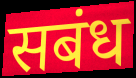
सबंध